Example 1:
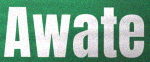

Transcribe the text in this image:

Awate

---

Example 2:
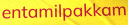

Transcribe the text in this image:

entamilpakkam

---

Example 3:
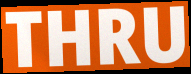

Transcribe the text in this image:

THRU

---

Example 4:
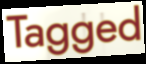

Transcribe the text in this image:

Tagged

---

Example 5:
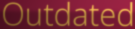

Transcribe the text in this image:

Outdated